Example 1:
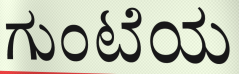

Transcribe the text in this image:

ಗುಂಟೆಯ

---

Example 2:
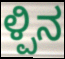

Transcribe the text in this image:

ಳ್ಪಿನ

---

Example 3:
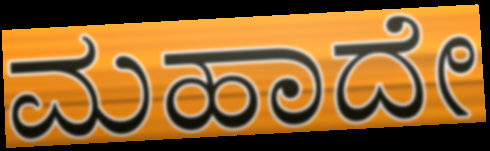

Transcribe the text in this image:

ಮಹಾದೇ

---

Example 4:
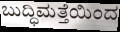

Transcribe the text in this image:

ಬುದ್ಧಿಮತ್ತೆಯಿಂದ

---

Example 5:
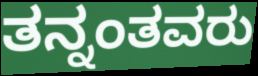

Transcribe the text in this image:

ತನ್ನಂತವರು